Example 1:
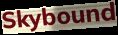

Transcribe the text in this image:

Skybound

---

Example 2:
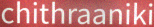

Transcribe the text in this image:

chithraaniki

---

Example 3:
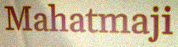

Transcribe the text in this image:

Mahatmaji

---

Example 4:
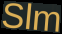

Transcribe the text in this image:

Slm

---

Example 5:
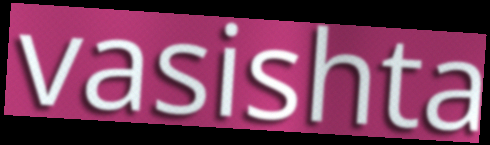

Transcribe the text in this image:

vasishta